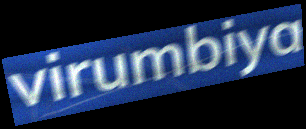
virumbiya